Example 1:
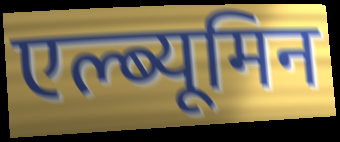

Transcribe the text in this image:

एल्ब्यूमिन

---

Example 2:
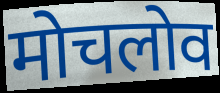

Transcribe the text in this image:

मोचलोव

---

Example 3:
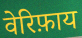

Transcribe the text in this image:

वेरिफ़ाय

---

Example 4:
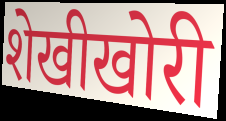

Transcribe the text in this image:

शेखीखोरी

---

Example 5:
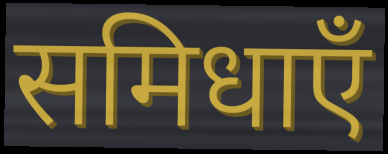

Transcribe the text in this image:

समिधाएँ